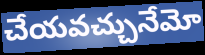
చేయవచ్చునేమో